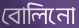
বোলিনো